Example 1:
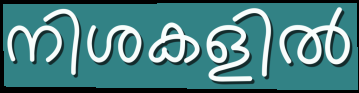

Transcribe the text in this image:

നിശകളിൽ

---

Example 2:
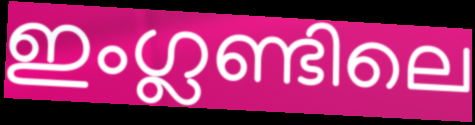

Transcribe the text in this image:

ഇംഗ്ലണ്ടിലെ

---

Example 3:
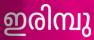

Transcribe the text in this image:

ഇരിമ്പു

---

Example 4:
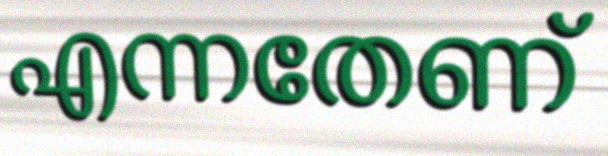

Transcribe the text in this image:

എന്നതേണ്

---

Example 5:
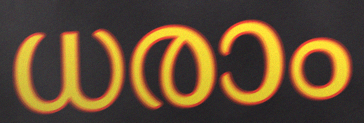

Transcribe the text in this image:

ധരാം